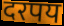
दरपय